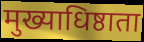
मुख्याधिष्ठाता